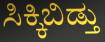
ಸಿಕ್ಕಿಬಿಡ್ತು